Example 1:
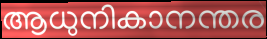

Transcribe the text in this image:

ആധുനികാനന്തര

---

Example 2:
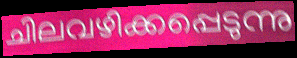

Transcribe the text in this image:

ചിലവഴിക്കപ്പെടുന്നു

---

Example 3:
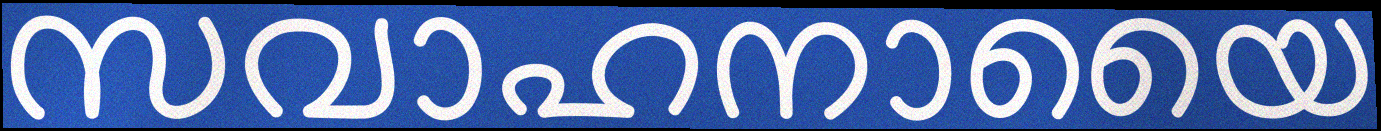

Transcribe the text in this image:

സവാഹനായൈ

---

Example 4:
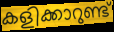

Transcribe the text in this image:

കളിക്കാറുണ്ട്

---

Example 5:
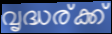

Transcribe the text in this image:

വൃദ്ധര്ക്ക്